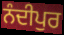
ਨੰਦੀਪੁਰ